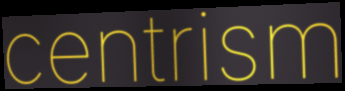
centrism